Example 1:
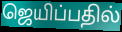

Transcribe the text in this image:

ஜெயிப்பதில்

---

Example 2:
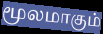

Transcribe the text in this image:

மூலமாகும்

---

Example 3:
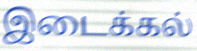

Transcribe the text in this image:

இடைக்கல்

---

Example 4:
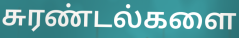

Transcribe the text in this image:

சுரண்டல்களை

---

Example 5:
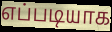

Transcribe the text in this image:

எப்படியாக